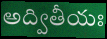
అద్వితీయః